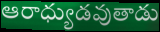
ఆరాధ్యుడవుతాడు